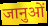
जानुओं